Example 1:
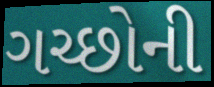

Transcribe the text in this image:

ગચ્છોની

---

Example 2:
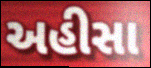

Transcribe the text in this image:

અહીસા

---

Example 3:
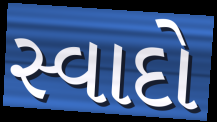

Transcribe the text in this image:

સ્વાદો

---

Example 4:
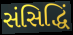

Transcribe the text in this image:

સંસિદ્ધિં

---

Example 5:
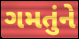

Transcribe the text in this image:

ગમતુંને